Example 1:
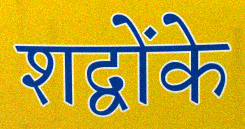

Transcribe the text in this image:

शद्वोंके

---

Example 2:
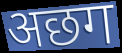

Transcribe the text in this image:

अछग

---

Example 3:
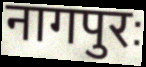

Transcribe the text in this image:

नागपुरः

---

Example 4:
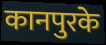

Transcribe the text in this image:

कानपुरके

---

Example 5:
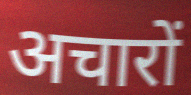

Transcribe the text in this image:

अचारों